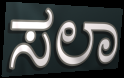
ಸಲಾ